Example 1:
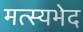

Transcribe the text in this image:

मत्स्यभेद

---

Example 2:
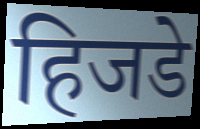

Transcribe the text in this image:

हिजडे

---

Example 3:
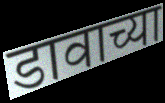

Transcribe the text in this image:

डावाच्या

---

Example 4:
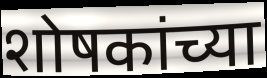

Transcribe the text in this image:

शोषकांच्या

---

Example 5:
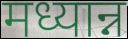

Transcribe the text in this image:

मध्यान्न